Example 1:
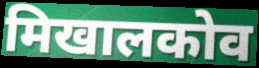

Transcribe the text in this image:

मिखालकोव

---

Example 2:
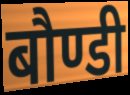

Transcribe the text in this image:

बौण्डी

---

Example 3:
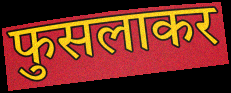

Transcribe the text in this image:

फुसलाकर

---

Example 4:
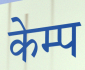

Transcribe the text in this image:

केम्प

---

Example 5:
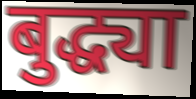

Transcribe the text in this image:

बुद्ध्या